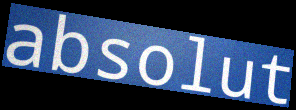
absolut